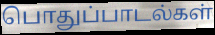
பொதுப்பாடல்கள்